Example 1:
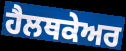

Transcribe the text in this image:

ਹੈਲਥਕੇਅਰ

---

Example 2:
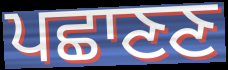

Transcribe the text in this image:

ਪਛਾਣਣ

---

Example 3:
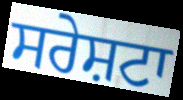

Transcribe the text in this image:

ਸਰੇਸ਼ਟਾ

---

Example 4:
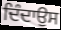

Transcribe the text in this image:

ਦਿੰਦਾਉਸ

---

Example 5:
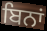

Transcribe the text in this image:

ਬਿਨਾਂ